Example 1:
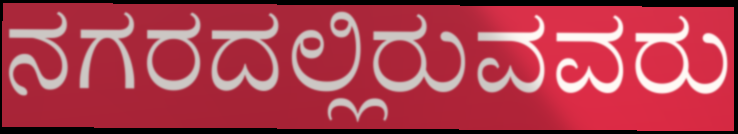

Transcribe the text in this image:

ನಗರದಲ್ಲಿರುವವರು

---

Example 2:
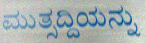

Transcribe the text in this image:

ಮುತ್ಸದ್ದಿಯನ್ನು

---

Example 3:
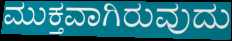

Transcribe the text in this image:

ಮುಕ್ತವಾಗಿರುವುದು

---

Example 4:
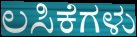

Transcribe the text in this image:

ಲಸಿಕೆಗಳು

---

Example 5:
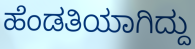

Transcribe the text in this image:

ಹೆಂಡತಿಯಾಗಿದ್ದು